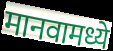
मानवामध्ये